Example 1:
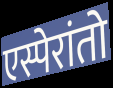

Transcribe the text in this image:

एस्पेरांतो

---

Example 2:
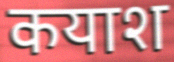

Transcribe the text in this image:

कयाश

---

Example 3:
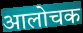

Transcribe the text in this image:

आलोचक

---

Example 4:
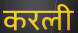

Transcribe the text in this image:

करली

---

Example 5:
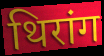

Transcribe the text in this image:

थिरांग